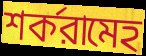
শর্করামেহ